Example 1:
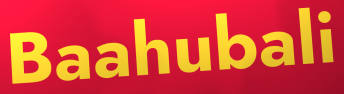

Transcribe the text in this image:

Baahubali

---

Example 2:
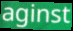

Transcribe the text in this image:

aginst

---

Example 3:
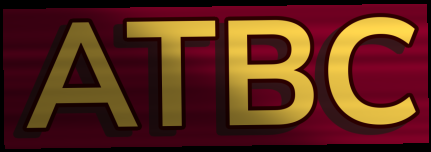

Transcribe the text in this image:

ATBC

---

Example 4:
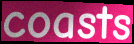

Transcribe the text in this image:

coasts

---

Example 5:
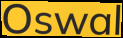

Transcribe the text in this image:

Oswal